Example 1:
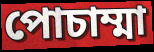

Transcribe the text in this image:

পোচাম্মা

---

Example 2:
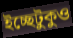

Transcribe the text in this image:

ইচ্ছেটুকুও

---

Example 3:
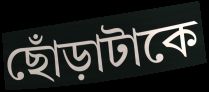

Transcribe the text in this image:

ছোঁড়াটাকে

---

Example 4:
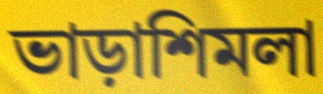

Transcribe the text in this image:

ভাড়াশিমলা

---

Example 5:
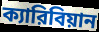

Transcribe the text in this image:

ক্যারিবিয়ান